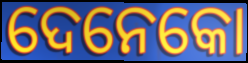
ଦେନେକୋ